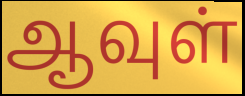
ஆவுள்